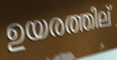
ഉയരത്തില്